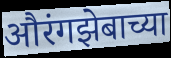
औरंगझेबाच्या